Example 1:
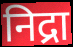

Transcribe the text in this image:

निद्रा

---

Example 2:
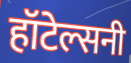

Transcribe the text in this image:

हॉटेल्सनी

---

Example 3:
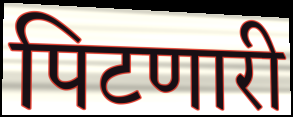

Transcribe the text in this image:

पिटणारी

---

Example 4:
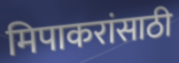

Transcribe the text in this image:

मिपाकरांसाठी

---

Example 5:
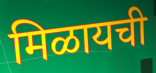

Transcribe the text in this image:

मिळायची